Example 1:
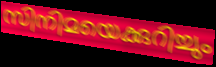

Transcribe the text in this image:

സിനിമയെക്കുറിച്ചും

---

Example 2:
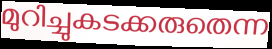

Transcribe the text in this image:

മുറിച്ചുകടക്കരുതെന്ന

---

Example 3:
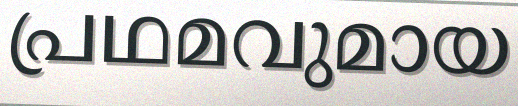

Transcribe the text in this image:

പ്രഥമവുമായ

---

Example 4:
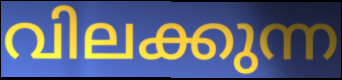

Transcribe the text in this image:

വിലക്കുന്ന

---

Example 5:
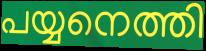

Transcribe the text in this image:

പയ്യനെത്തി